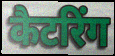
कैटरिंग